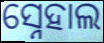
ସ୍ନେହାଲ